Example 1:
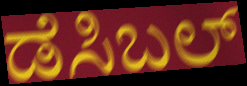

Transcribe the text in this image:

ಡೆಸಿಬಲ್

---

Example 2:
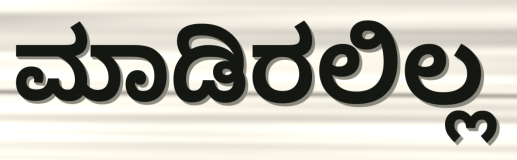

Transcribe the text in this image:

ಮಾಡಿರಲಿಲ್ಲ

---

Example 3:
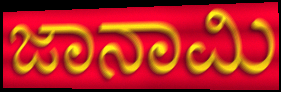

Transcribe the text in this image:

ಜಾನಾಮಿ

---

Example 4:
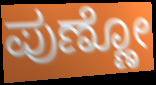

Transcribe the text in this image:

ಪುಣ್ಣೋ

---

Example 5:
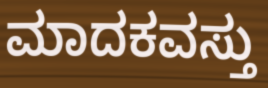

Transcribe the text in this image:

ಮಾದಕವಸ್ತು